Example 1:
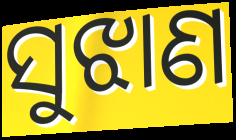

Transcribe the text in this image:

ସୁଝାଣ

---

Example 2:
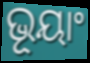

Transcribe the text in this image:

ଭୂୟାଂ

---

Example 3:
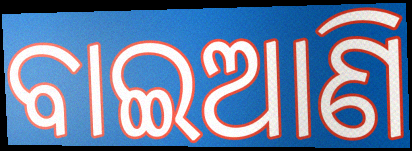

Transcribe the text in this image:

ବାଇଆଣି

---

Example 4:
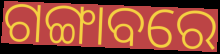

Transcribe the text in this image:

ଗଙ୍ଗାବରେ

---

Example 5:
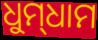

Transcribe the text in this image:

ଧୁମ୍‌ଧାମ